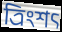
ত্ৰিংশৎ